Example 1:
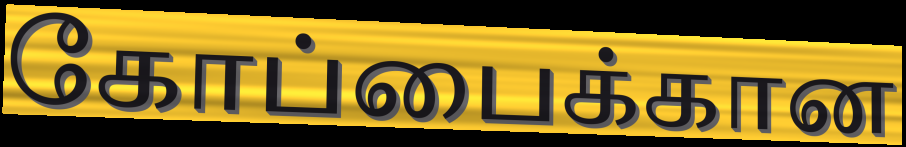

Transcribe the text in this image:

கோப்பைக்கான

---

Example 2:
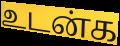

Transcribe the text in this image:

உடன்க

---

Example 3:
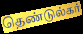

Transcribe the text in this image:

தெண்டுல்கர்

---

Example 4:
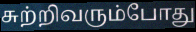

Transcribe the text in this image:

சுற்றிவரும்போது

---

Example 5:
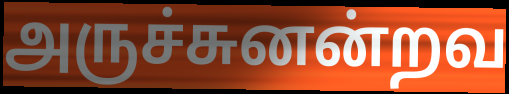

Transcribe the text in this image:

அருச்சுனன்றவ